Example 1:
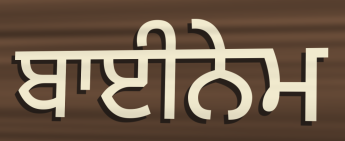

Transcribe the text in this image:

ਬਾਈਨੇਮ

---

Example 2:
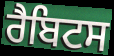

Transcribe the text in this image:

ਰੈਬਿਟਸ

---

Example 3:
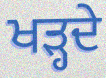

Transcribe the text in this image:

ਖੜ੍ਹਦੇ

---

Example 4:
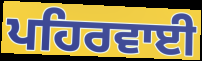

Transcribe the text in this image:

ਪਹਿਰਵਾਈ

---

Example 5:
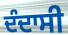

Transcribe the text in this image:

ਦੰਦਾਸੀ